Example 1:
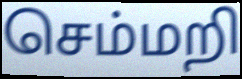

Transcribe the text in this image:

செம்மறி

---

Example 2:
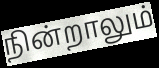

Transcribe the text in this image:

நின்றாலும்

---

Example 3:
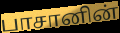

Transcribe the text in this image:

பாசானின்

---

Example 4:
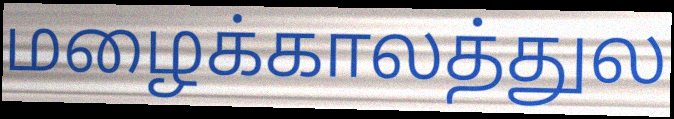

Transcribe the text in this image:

மழைக்காலத்துல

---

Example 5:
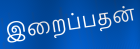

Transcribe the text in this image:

இறைப்பதன்